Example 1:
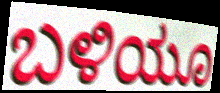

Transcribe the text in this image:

ಬಳಿಯೂ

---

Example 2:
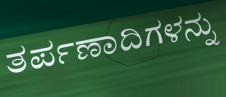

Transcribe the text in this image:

ತರ್ಪಣಾದಿಗಳನ್ನು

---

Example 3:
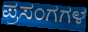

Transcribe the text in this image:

ಪ್ರಸಂಗಗಳ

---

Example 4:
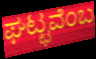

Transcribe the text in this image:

ಘಟ್ಟವೆಂಬ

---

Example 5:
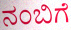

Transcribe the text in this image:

ನಂಬಿಗೆ